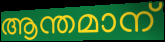
ആന്തമാന്